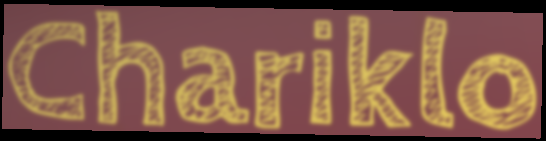
Chariklo